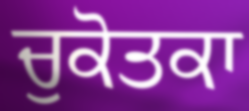
ਚੁਕੋਤਕਾ